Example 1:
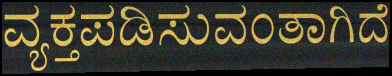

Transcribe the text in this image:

ವ್ಯಕ್ತಪಡಿಸುವಂತಾಗಿದೆ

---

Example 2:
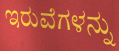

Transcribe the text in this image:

ಇರುವೆಗಳನ್ನು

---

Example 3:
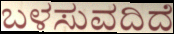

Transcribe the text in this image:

ಬಳಸುವದಿದೆ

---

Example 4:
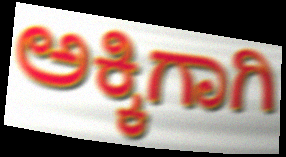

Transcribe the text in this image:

ಅಕ್ಕಿಗಾಗಿ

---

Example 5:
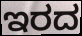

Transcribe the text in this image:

ಇರದ